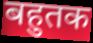
बहुतक